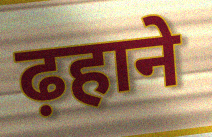
ढ़हाने